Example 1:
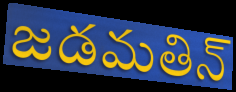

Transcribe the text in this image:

జడమతిన్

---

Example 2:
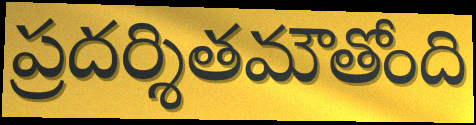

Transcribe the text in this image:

ప్రదర్శితమౌతోంది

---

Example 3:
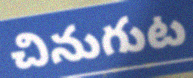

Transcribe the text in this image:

చినుగుట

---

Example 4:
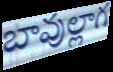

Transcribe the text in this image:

బావుల్లాగ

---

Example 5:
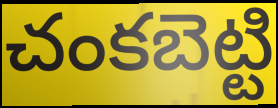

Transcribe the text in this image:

చంకబెట్టి